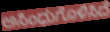
ಅಸಿಂಧುಗೊಳಿಸಿದೆ